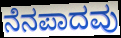
ನೆನಪಾದವು